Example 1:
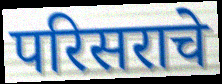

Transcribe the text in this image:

परिसराचे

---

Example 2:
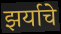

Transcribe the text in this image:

झर्याचे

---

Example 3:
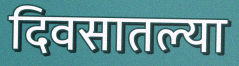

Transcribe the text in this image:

दिवसातल्या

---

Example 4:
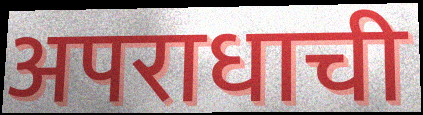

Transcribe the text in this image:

अपराधाची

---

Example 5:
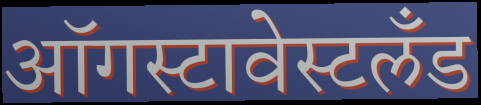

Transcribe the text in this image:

ऑगस्टावेस्टलँड